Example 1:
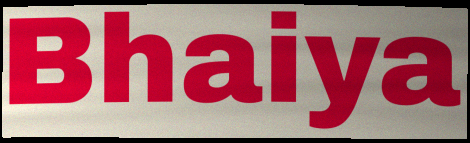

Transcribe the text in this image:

Bhaiya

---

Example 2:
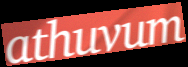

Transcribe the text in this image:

athuvum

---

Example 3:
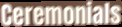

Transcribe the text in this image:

Ceremonials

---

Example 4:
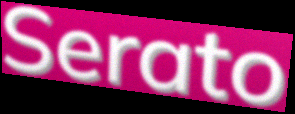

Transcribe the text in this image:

Serato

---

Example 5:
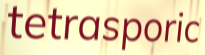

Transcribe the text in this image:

tetrasporic